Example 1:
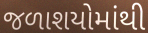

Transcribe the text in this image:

જળાશયોમાંથી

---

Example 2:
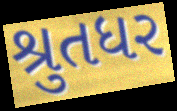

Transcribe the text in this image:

શ્રુતધર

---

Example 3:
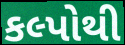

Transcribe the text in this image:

કલ્પોથી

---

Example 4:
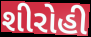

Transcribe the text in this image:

શીરોહી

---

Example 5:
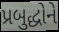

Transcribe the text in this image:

પ્રબુદ્ધોને